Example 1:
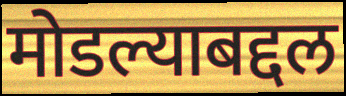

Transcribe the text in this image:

मोडल्याबद्दल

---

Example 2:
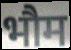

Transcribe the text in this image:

भौम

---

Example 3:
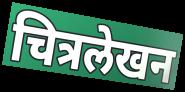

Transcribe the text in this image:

चित्रलेखन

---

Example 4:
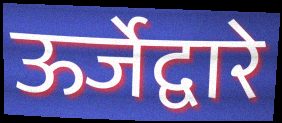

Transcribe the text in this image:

ऊर्जेद्वारे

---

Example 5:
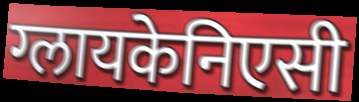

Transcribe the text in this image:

ग्लायकेनिएसी